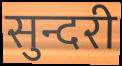
सुन्दरी